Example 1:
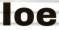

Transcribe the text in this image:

Ioe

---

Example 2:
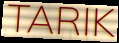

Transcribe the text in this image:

TARIK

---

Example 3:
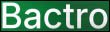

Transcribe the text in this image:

Bactro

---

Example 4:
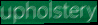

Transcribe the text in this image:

upholstery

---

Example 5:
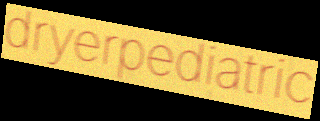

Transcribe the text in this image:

dryerpediatric